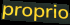
proprio